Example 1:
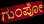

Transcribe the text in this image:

ಗುಂಪೋ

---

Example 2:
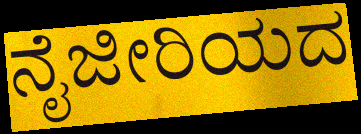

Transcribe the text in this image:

ನೈಜೀರಿಯದ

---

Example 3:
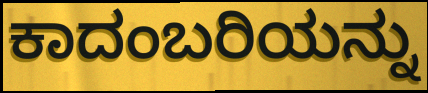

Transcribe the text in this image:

ಕಾದಂಬರಿಯನ್ನು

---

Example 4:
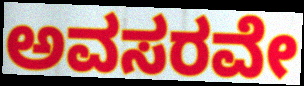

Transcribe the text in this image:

ಅವಸರವೇ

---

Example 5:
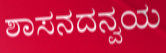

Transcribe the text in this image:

ಶಾಸನದನ್ವಯ